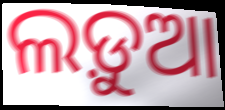
ଲଡ଼ୁଆ